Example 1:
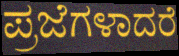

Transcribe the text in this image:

ಪ್ರಜೆಗಳಾದರೆ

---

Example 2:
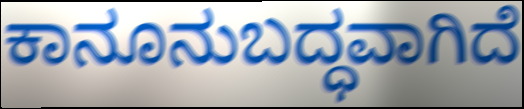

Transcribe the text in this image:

ಕಾನೂನುಬದ್ಧವಾಗಿದೆ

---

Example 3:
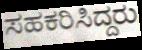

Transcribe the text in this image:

ಸಹಕರಿಸಿದ್ದರು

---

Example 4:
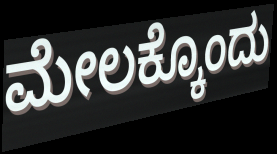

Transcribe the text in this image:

ಮೇಲಕ್ಕೊಂದು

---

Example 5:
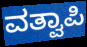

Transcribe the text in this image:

ವತ್ವಾಪಿ